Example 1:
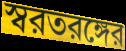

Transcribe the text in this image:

স্বরতরঙ্গের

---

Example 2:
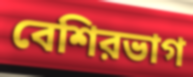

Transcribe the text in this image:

বেশিরভাগ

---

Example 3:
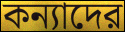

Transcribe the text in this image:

কন্যাদের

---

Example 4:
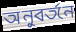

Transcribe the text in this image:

অনুবর্তনে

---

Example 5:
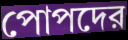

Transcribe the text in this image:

পোপদের